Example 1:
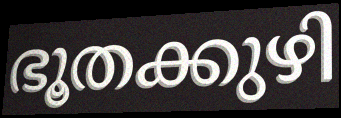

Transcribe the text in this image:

ഭൂതക്കുഴി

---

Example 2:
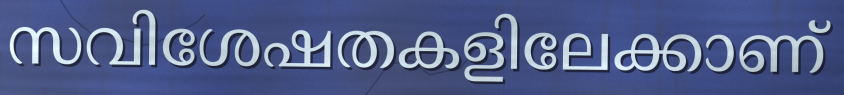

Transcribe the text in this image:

സവിശേഷതകളിലേക്കാണ്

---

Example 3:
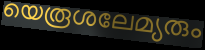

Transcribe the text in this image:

യെരൂശലേമ്യരും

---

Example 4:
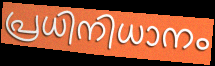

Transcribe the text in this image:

പ്രധിനിധാനം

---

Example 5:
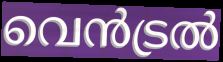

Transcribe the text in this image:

വെൻട്രൽ